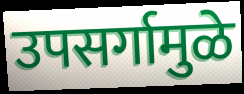
उपसर्गामुळे